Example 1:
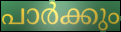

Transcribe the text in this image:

പാർക്കും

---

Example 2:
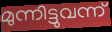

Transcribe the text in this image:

മുന്നിട്ടുവന്ന്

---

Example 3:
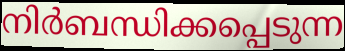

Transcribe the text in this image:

നിർബന്ധിക്കപ്പെടുന്ന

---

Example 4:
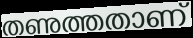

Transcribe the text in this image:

തണുത്തതാണ്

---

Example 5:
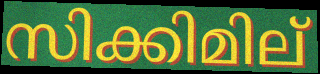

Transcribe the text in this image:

സിക്കിമില്